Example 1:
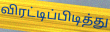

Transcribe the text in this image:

விரட்டிப்பிடித்து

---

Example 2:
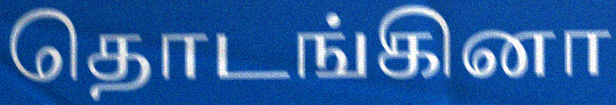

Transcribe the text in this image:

தொடங்கினா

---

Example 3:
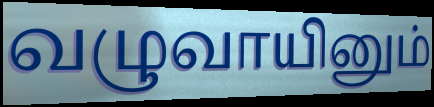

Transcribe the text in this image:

வழுவாயினும்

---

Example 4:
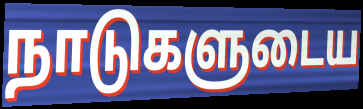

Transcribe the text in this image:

நாடுகளுடைய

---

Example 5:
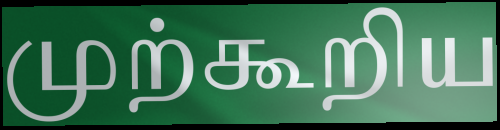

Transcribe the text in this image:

முற்கூறிய